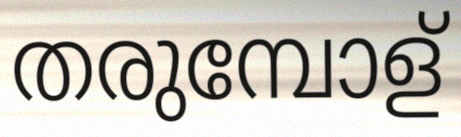
തരുമ്പോള്